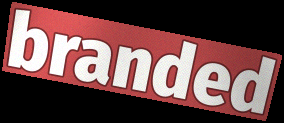
branded